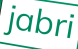
jabri